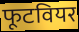
फूटवियर